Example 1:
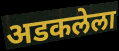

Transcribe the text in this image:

अडकलेला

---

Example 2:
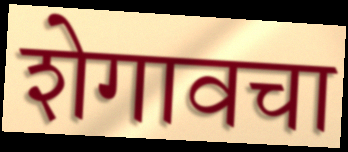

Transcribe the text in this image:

शेगावचा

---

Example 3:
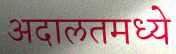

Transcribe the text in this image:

अदालतमध्ये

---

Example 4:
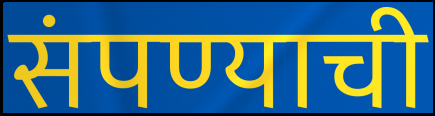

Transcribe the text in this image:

संपण्याची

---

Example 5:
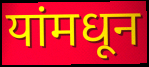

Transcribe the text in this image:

यांमधून